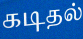
கடிதல்